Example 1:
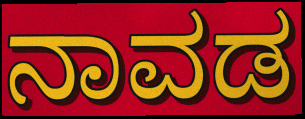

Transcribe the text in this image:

ನಾವಡ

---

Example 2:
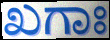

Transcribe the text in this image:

ಖಗಾಃ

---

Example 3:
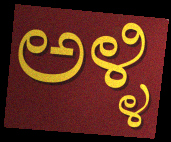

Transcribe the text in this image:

ಅಳ್ಳಿ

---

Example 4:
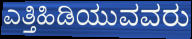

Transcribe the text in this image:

ಎತ್ತಿಹಿಡಿಯುವವರು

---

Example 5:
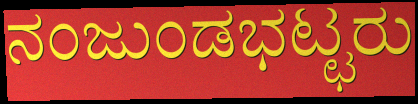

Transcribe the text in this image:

ನಂಜುಂಡಭಟ್ಟರು